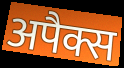
अपैक्स